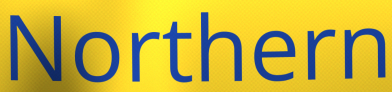
Northern